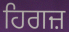
ਹਿਗਜ਼